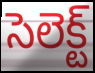
సెలెక్ట్